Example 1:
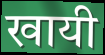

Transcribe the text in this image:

खायी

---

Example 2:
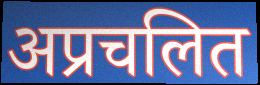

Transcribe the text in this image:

अप्रचलित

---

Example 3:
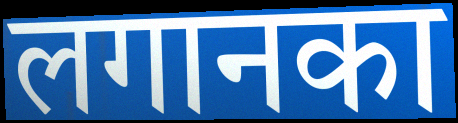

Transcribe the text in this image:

लगानका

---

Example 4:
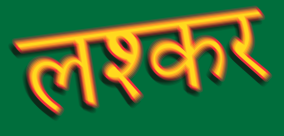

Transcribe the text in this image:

लश्कर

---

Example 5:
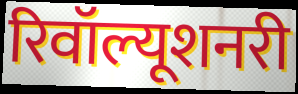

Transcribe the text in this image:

रिवॉल्यूशनरी